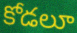
కోడలూ